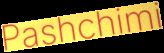
Pashchimi